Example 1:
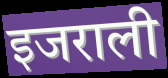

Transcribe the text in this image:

इजराली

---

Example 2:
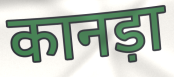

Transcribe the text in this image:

कानड़ा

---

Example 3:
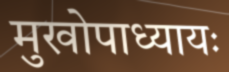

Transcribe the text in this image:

मुखोपाध्यायः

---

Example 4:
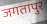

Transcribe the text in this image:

जगतापुर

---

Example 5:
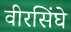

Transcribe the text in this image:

वीरसिंघे